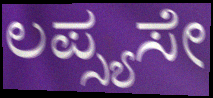
ಲಪ್ಸ್ಯಸೇ